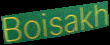
Boisakh